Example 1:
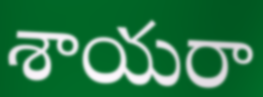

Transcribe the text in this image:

శాయరా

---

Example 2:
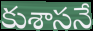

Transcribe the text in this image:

కుశాసనే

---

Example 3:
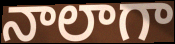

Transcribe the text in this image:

నాలాగా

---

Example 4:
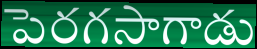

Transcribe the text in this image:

పెరగసాగాడు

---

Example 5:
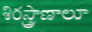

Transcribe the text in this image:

శిరస్త్రాణాలూ